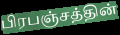
பிரபஞ்சத்தின்